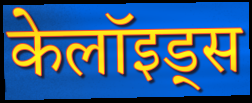
केलॉइड्स